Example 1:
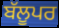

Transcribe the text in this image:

ਬੱਲੂਪਰ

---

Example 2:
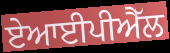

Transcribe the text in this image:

ਏਆਈਪੀਐੱਲ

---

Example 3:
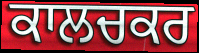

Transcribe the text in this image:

ਕਾਲਚਕਰ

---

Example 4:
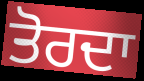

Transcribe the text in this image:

ਤੋਰਦਾ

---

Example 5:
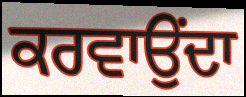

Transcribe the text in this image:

ਕਰਵਾਉਂਦਾ